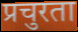
प्रचुरता